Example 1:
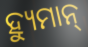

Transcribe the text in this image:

ହ୍ୟୁମାନ୍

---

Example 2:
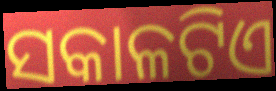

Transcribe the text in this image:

ସକାଳଟିଏ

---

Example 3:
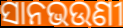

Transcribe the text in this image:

ସାନଭଉଣୀ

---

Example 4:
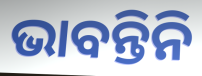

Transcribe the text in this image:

ଭାବନ୍ତିନି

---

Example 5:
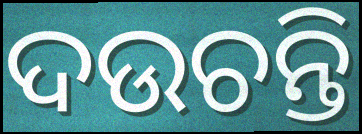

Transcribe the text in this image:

ଦଉଚନ୍ତି